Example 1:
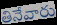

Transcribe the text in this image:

తినేవారు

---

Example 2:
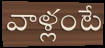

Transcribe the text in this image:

వాళ్లంటే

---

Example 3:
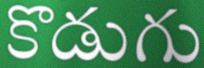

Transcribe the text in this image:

కొడుగు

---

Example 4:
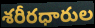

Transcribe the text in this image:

శరీరధారుల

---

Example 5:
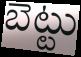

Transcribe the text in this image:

బెట్టు